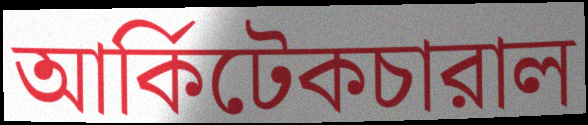
আর্কিটেকচারাল